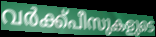
വർക്ക്പീസുകളുടെ